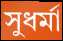
সুধর্মা